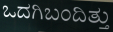
ಒದಗಿಬಂದಿತ್ತು